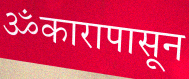
ॐकारापासून